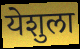
येशुला